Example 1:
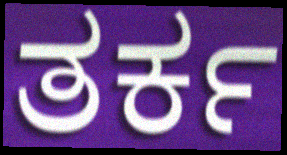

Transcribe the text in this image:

ತರ್ಕ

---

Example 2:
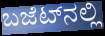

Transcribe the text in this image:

ಬಜೆಟ್‌ನಲ್ಲಿ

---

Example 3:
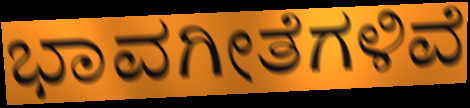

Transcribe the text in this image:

ಭಾವಗೀತೆಗಳಿವೆ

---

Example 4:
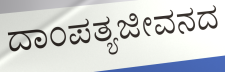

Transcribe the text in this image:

ದಾಂಪತ್ಯಜೀವನದ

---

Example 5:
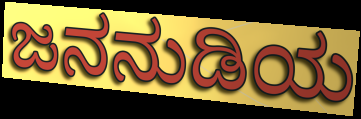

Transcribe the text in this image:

ಜನನುಡಿಯ